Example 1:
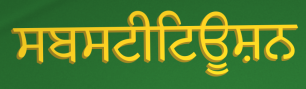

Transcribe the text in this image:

ਸਬਸਟੀਟਿਊਸ਼ਨ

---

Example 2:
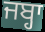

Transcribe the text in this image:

ਜਬ੍ਹਾ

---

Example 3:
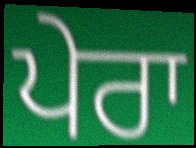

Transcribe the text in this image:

ਪੇਰਾ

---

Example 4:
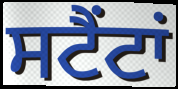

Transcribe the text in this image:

ਸਟੈਂਟਾਂ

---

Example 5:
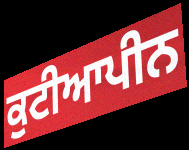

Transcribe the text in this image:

ਕੁਟੀਆਪੀਨ